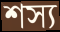
শস্য